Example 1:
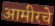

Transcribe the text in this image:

आमीरचे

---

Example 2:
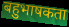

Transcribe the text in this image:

बहुभाषकता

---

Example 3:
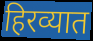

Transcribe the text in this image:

हिरव्यात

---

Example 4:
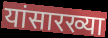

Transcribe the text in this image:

यांसारख्या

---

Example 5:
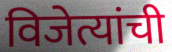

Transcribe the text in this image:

विजेत्यांची